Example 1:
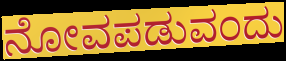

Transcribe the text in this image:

ನೋವಪಡುವಂದು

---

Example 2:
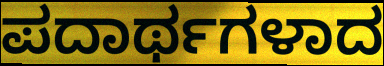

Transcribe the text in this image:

ಪದಾರ್ಥಗಳಾದ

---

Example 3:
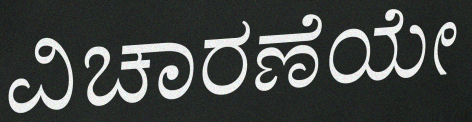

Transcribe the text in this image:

ವಿಚಾರಣೆಯೇ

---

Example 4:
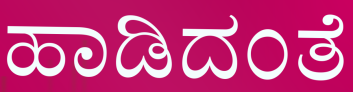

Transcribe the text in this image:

ಹಾಡಿದಂತೆ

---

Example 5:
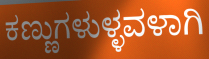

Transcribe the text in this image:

ಕಣ್ಣುಗಳುಳ್ಳವಳಾಗಿ